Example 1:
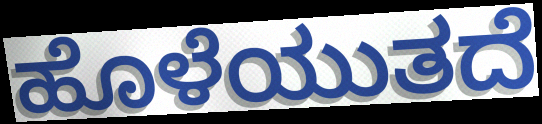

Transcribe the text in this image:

ಹೊಳೆಯುತದೆ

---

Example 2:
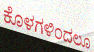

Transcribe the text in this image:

ಕೊಳಗಳಿಂದಲೂ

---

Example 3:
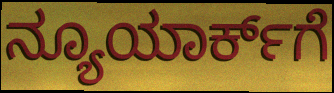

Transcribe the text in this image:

ನ್ಯೂಯಾರ್ಕ್‌ಗೆ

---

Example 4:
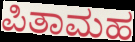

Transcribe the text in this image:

ಪಿತಾಮಹ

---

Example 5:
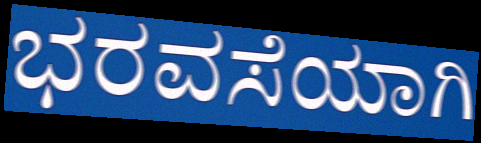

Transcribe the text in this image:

ಭರವಸೆಯಾಗಿ